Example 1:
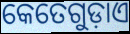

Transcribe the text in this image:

କେତେଗୁଡ଼ାଏ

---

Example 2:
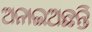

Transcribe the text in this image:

ଅନାଇଅଛନ୍ତି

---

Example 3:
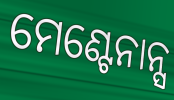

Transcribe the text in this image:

ମେଣ୍ଟେନାନ୍ସ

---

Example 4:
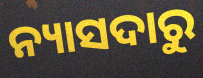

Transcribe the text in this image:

ନ୍ୟାସଦାରୁ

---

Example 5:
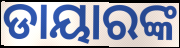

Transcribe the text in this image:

ଡାୟାରଙ୍କ